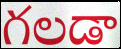
గలడా